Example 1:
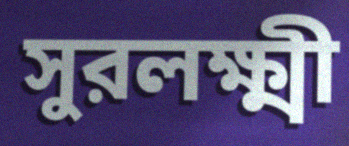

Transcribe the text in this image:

সুরলক্ষ্মী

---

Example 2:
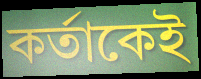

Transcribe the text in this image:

কর্তাকেই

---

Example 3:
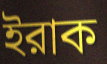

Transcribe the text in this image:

ইরাক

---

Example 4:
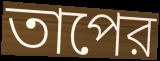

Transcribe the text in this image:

তাপের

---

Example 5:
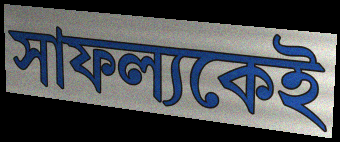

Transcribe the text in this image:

সাফল্যকেই